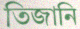
তিজানি